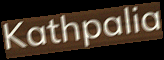
Kathpalia